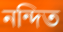
নন্দিত